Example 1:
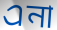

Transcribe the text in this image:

এনা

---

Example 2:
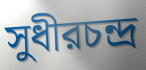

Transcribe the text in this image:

সুধীরচন্দ্র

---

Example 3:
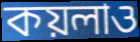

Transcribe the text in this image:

কয়লাও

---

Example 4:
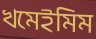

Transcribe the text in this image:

খমেইমিম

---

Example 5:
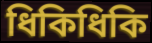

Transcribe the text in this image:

ধিকিধিকি